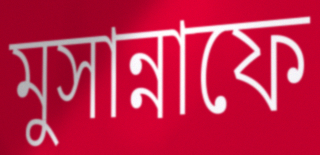
মুসান্নাফে